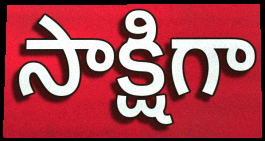
సాక్షిగా